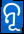
ନୂ